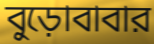
বুড়োবাবার